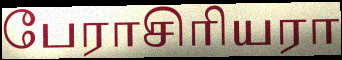
பேராசிரியரா